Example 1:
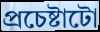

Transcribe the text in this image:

প্ৰচেষ্টাটো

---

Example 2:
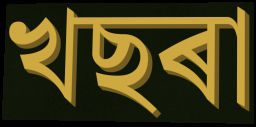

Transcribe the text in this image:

খছৰা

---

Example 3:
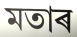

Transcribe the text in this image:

মতাৰ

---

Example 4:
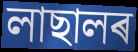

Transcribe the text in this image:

লাছালৰ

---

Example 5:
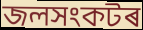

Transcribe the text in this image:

জলসংকটৰ